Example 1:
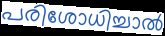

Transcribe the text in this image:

പരിശോധിച്ചാൽ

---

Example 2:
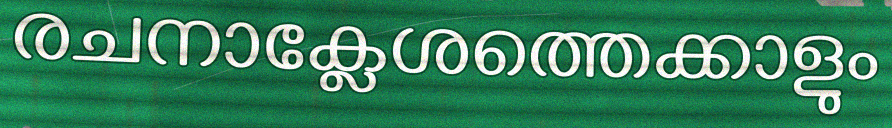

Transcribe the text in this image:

രചനാക്ലേശത്തെക്കാളും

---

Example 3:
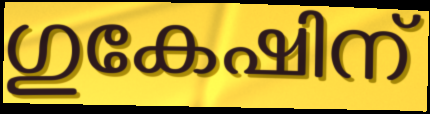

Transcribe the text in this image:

ഗുകേഷിന്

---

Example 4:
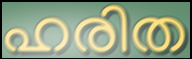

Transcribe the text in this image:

ഹരിത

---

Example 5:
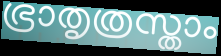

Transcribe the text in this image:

ഭ്രാതൃത്രസ്താം